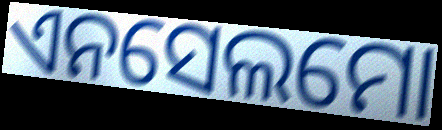
ଏନସେଲମୋ